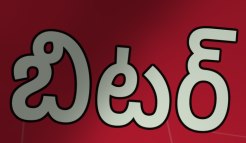
బిటర్